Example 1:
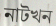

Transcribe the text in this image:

নাটখন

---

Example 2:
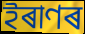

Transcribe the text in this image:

ইৰাণৰ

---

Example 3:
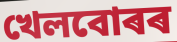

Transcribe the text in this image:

খেলবোৰৰ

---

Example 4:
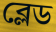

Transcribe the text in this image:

ব্লেড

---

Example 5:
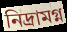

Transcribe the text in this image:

নিদ্ৰামগ্ন